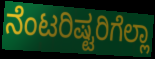
ನೆಂಟರಿಷ್ಟರಿಗೆಲ್ಲಾ